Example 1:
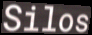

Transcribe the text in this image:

Silos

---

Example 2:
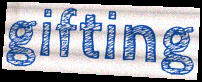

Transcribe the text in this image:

gifting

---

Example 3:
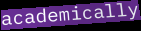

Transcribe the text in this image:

academically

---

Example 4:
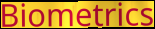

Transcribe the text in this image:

Biometrics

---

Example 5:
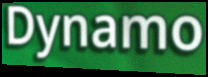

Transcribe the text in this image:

Dynamo